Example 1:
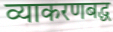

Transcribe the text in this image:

व्याकरणबद्ध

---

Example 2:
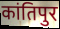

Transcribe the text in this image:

कांतिपुर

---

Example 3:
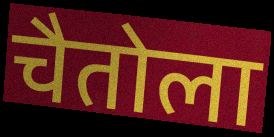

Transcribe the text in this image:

चैतोला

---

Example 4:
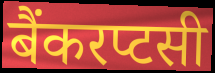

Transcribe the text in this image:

बैंकरप्टसी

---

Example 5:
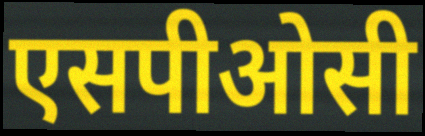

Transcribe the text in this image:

एसपीओसी